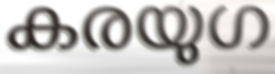
കരയുഗ